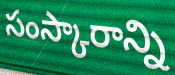
సంస్కారాన్ని